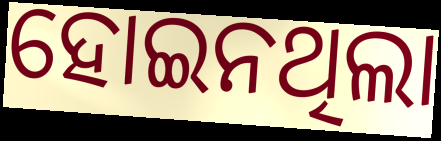
ହୋଇନଥିଲା